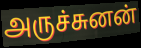
அருச்சுனன்